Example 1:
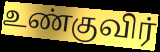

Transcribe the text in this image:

உண்குவிர்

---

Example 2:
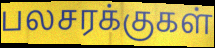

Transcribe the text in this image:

பலசரக்குகள்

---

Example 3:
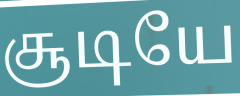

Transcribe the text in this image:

சூடியே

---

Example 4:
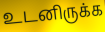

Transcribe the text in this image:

உடனிருக்க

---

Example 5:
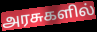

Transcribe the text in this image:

அரசுகளில்